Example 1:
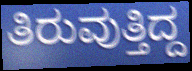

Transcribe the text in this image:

ತಿರುವುತ್ತಿದ್ದ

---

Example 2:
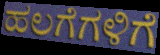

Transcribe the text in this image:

ಹಲಗೆಗಳಿಗೆ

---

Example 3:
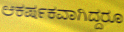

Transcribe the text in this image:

ಆಕರ್ಷಕವಾಗಿದ್ದರೂ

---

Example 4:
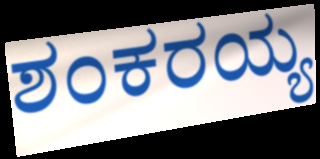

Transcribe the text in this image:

ಶಂಕರಯ್ಯ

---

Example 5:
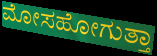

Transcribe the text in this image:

ಮೋಸಹೋಗುತ್ತಾ